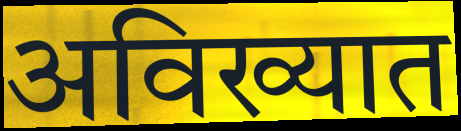
अविख्यात